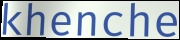
khenche